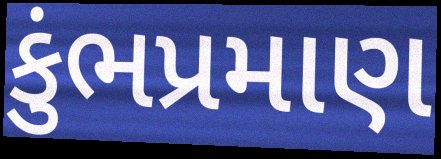
કુંભપ્રમાણ